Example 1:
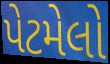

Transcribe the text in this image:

પેટમેલો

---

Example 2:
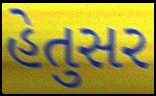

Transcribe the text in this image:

હેતુસર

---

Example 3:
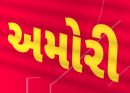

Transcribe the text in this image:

અમોરી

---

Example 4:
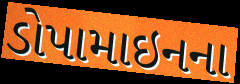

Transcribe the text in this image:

ડોપામાઇનના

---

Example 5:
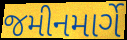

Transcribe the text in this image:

જમીનમાર્ગે